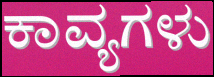
ಕಾವ್ಯಗಳು